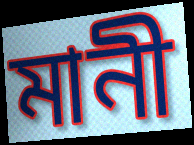
মানী